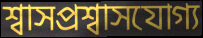
শ্বাসপ্রশ্বাসযোগ্য